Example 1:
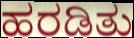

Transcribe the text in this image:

ಹರಡಿತು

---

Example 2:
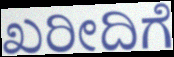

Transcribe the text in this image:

ಖರೀದಿಗೆ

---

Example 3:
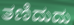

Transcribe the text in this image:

ತಣಿದುದು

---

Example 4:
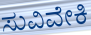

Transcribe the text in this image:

ಸುವಿವೇಕಿ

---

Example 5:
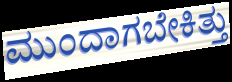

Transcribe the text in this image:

ಮುಂದಾಗಬೇಕಿತ್ತು